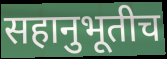
सहानुभूतीच